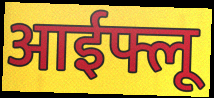
आईफ्लू